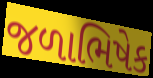
જળાભિષેક